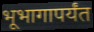
भूभागापर्यंत